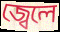
জ্বেলে